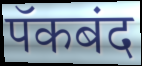
पॅकबंद